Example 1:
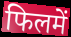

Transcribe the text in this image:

फिलमें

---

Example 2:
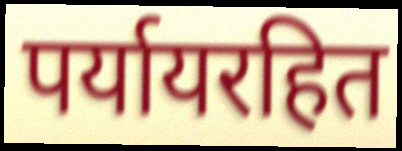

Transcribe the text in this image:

पर्यायरहित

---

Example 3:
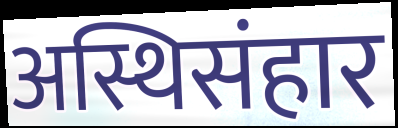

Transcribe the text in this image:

अस्थिसंहार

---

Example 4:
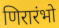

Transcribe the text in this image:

णिरारंभो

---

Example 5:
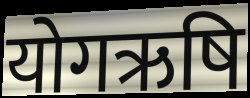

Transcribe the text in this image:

योगऋषि